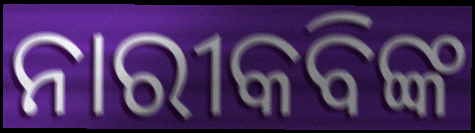
ନାରୀକବିଙ୍କ